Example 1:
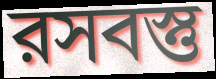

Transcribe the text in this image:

রসবস্তু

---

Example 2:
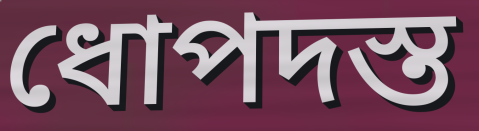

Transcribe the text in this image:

ধোপদস্ত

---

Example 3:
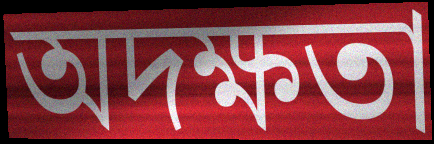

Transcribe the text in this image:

অদক্ষতা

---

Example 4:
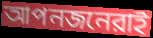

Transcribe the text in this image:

আপনজনেরাই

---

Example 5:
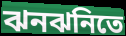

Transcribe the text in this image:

ঝনঝনিতে